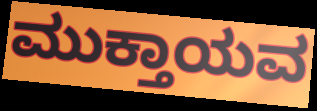
ಮುಕ್ತಾಯವ